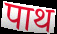
पाथ